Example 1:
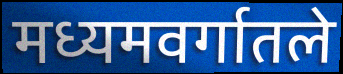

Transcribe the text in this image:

मध्यमवर्गातले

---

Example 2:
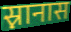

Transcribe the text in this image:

स्नानास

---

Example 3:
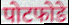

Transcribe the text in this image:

पोटफोडे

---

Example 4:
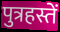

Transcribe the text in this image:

पुत्रहस्तें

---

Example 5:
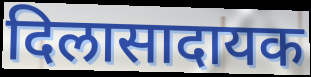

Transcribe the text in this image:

दिलासादायक